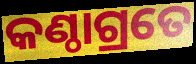
କଣ୍ଠାଗ୍ରତେ